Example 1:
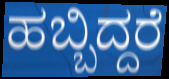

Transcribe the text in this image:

ಹಬ್ಬಿದ್ದರೆ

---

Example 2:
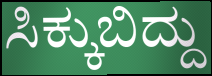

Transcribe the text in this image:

ಸಿಕ್ಕುಬಿದ್ದು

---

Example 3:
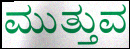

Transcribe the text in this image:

ಮುತ್ತುವ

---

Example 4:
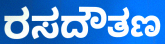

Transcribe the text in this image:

ರಸದೌತಣ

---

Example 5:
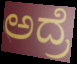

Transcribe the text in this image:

ಅದ್ರೆ